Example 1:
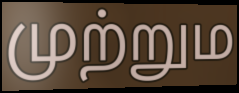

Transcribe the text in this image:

முற்றும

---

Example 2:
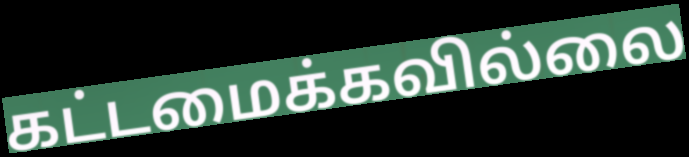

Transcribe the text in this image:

கட்டமைக்கவில்லை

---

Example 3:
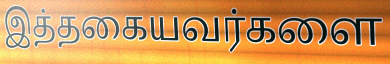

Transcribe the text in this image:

இத்தகையவர்களை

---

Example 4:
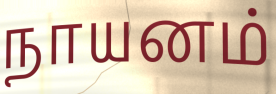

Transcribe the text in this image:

நாயனம்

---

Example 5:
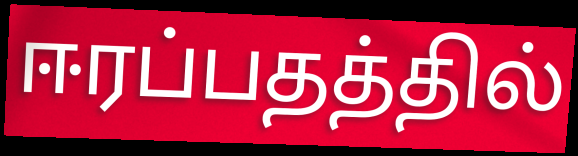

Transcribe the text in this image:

ஈரப்பதத்தில்